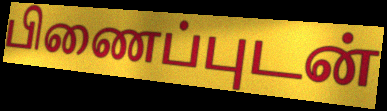
பிணைப்புடன்